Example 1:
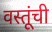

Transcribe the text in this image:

वस्तूंची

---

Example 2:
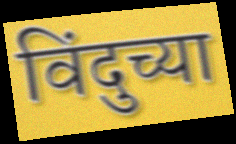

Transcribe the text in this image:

विंदुच्या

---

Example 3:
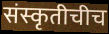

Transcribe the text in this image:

संस्कृतीचीच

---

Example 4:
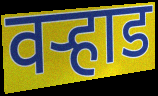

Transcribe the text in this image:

वऱ्हाड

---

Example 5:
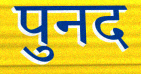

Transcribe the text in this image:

पुनद